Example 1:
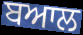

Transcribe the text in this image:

ਬਆਲ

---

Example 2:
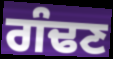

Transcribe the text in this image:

ਗੰਢਣ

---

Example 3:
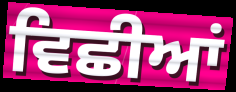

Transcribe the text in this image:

ਵਿਛੀਆਂ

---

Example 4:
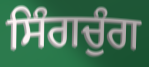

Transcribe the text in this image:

ਸਿੰਗਚੁੰਗ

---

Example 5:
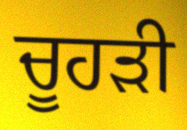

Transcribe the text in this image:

ਚੂਹੜੀ